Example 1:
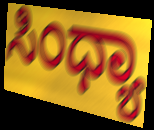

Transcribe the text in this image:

ಸಿಂಧ್ಯಾ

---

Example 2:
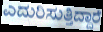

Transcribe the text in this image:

ಎದುರಿಸುತ್ತಿದ್ದಾರೆ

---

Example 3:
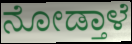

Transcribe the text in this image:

ನೋಡ್ತಾಳೆ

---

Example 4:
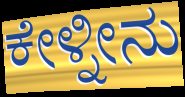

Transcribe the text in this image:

ಕೇಳ್ನೀನು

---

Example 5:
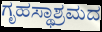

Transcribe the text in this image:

ಗೃಹಸ್ಥಾಶ್ರಮದ